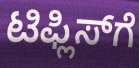
ಟಿಫ್ಲಿಸ್‍ಗೆ